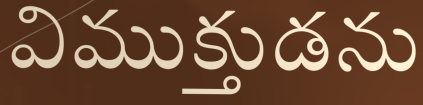
విముక్తుడను